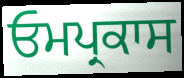
ਓਮਪ੍ਰਕਾਸ